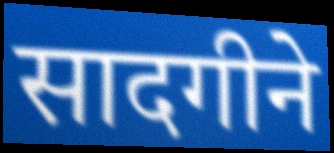
सादगीने